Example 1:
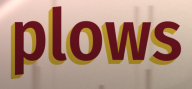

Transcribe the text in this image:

plows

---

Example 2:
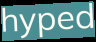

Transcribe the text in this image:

hyped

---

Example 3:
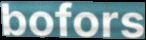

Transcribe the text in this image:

bofors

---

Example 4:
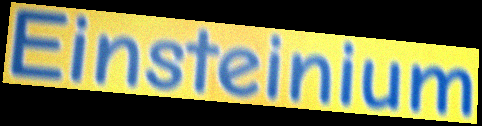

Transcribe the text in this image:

Einsteinium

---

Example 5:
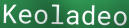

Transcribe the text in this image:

Keoladeo